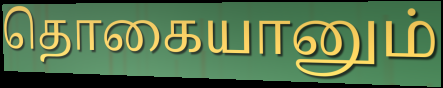
தொகையானும்